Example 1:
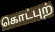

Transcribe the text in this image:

கொட்புற்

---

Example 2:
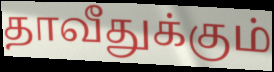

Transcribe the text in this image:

தாவீதுக்கும்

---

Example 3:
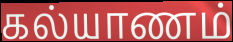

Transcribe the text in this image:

கல்யாணம்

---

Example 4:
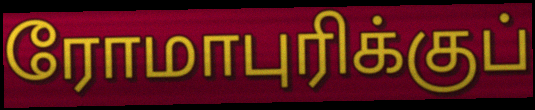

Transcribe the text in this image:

ரோமாபுரிக்குப்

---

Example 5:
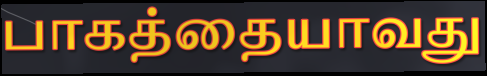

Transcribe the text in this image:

பாகத்தையாவது